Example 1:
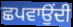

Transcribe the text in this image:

ਛਪਵਾਉਂਦੀ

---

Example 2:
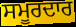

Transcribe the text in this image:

ਸਮੂਰਦਾਰ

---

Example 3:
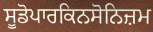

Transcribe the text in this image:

ਸੂਡੋਪਾਰਕਿਨਸੋਨਿਜ਼ਮ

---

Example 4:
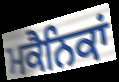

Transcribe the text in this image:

ਮਕੈਨਿਕਾਂ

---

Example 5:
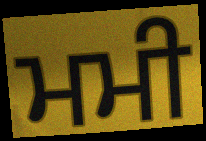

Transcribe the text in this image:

ਮਮੀ